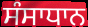
ਸੰਸਾਧਾਨ